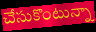
చేసుకొంటున్నా